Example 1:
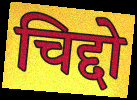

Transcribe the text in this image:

चिद्दो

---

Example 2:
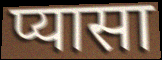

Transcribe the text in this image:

प्यासा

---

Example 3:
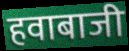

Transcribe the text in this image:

हवाबाजी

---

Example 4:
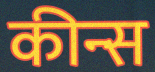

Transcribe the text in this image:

कीन्स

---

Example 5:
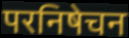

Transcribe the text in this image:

परनिषेचन